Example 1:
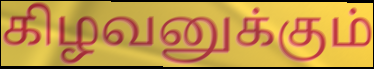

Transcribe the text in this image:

கிழவனுக்கும்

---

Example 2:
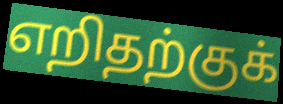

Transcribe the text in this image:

எறிதற்குக்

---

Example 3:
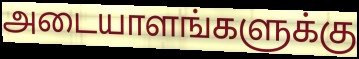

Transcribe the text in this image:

அடையாளங்களுக்கு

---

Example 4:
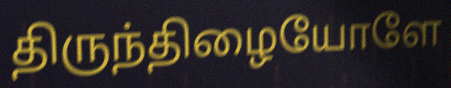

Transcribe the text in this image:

திருந்திழையோளே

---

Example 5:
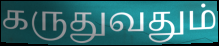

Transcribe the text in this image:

கருதுவதும்